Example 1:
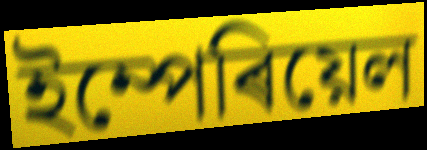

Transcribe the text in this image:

ইম্পেৰিয়েল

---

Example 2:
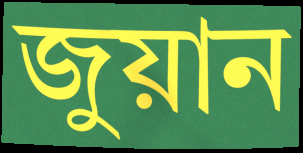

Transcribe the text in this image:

জুয়ান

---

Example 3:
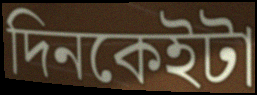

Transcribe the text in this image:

দিনকেইটা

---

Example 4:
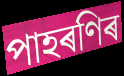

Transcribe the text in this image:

পাহৰণিৰ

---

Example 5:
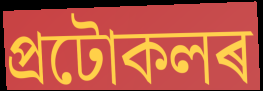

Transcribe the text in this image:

প্ৰটোকলৰ